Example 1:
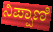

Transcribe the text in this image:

ನಿಪ್ಪಾಣಿ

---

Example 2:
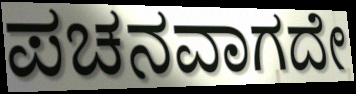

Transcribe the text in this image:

ಪಚನವಾಗದೇ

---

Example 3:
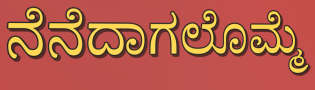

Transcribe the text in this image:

ನೆನೆದಾಗಲೊಮ್ಮೆ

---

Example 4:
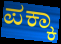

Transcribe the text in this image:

ಪಕ್ಕಾ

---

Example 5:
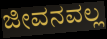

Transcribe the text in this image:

ಜೀವನವಲ್ಲ